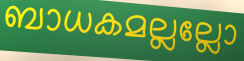
ബാധകമല്ലല്ലോ